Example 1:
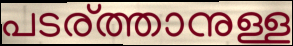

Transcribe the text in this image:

പടര്ത്താനുള്ള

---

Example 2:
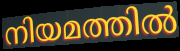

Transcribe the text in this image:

നിയമത്തിൽ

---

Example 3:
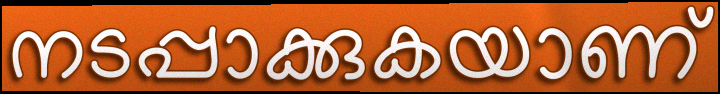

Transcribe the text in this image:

നടപ്പാക്കുകയാണ്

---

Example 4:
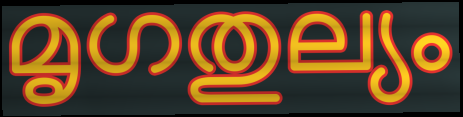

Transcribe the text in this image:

മൃഗതുല്യം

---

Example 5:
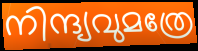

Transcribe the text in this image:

നിന്ദ്യവുമത്രേ